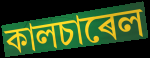
কালচাৰেল